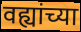
वह्यांच्या